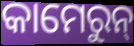
କାମେରୁନ୍